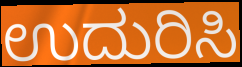
ಉದುರಿಸಿ